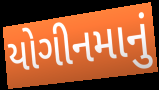
યોગીનમાનું